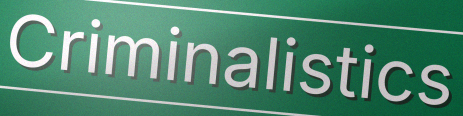
Criminalistics